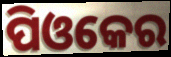
ପିଓକେର